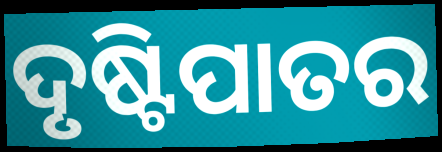
ଦୃଷ୍ଟିପାତର